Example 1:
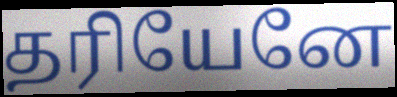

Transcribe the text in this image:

தரியேனே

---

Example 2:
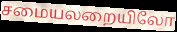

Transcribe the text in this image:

சமையலறையிலோ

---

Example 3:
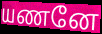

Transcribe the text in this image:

யணனே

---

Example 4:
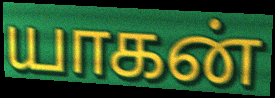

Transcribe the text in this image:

யாகன்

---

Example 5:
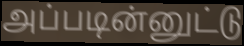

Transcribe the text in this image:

அப்படின்னுட்டு